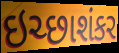
ઇચ્છાશંકર